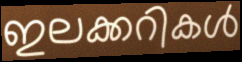
ഇലക്കറികൾ